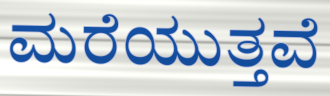
ಮರೆಯುತ್ತವೆ